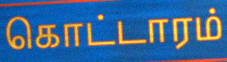
கொட்டாரம்